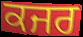
ਕਜਰ